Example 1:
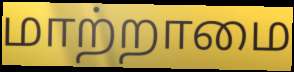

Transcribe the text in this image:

மாற்றாமை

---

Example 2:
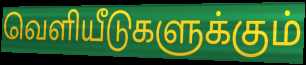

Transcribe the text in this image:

வெளியீடுகளுக்கும்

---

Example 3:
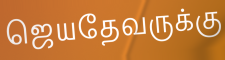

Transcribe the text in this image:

ஜெயதேவருக்கு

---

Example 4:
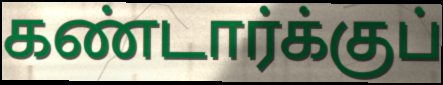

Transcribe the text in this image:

கண்டார்க்குப்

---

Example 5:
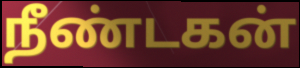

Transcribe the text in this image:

நீண்டகன்